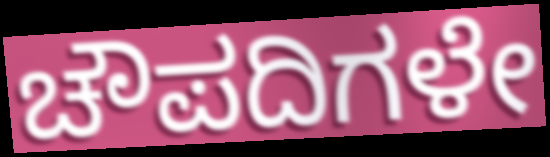
ಚೌಪದಿಗಳೇ